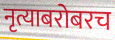
नृत्याबरोबरच